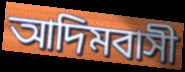
আদিমবাসী